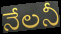
నేలనీ